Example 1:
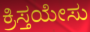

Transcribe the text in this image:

ಕ್ರಿಸ್ತಯೇಸು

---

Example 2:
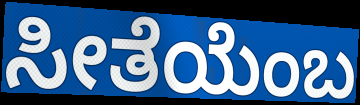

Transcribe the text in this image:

ಸೀತೆಯೆಂಬ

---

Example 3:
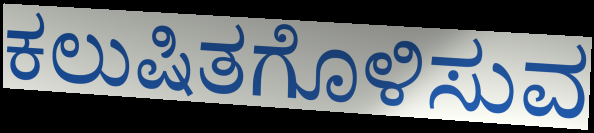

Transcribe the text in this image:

ಕಲುಷಿತಗೊಳಿಸುವ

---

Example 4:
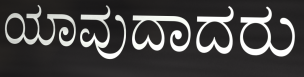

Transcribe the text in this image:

ಯಾವುದಾದರು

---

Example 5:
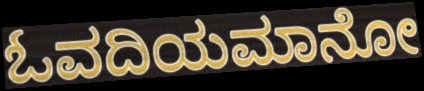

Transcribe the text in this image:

ಓವದಿಯಮಾನೋ